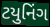
ટયુનિંગ